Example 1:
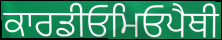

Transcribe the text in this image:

ਕਾਰਡੀਓਮਿਓਪੈਥੀ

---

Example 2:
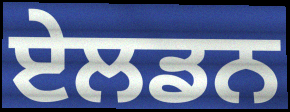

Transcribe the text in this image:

ਏਲਡਨ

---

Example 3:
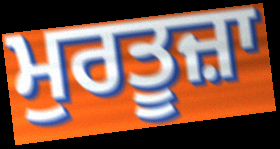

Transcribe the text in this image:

ਮੁਰਤੂਜ਼ਾ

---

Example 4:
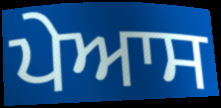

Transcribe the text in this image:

ਪੇਆਸ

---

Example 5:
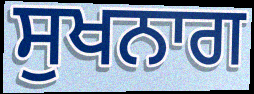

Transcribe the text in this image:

ਸੁਖਨਾਗ